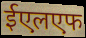
ईएलएफ